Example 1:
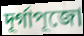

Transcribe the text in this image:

দূর্গাপূজো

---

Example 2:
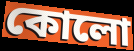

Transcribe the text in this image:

কোলো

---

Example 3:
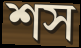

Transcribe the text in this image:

শস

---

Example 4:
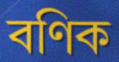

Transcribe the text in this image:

বণিক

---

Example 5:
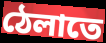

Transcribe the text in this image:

ঠেলাতে